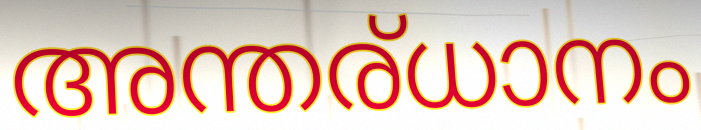
അന്തര്ധാനം